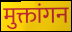
मुक्तांगन